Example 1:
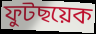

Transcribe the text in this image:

ফুটছয়েক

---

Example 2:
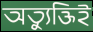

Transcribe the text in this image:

অত্যুক্তিই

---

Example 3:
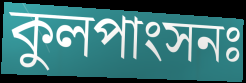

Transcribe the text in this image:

কুলপাংসনঃ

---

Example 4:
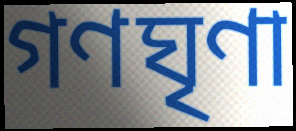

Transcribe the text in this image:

গণঘৃণা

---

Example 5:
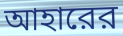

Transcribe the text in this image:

আহারের